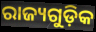
ରାଜ୍ୟଗୁଡ଼ିକ